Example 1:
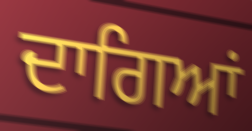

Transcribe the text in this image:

ਦਾਗਿਆਂ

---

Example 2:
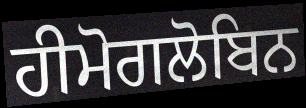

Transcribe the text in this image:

ਹੀਮੋਗਲੋਬਿਨ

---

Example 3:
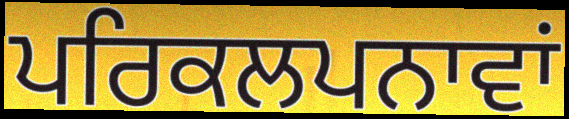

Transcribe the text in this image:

ਪਰਿਕਲਪਨਾਵਾਂ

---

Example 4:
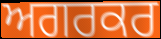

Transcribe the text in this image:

ਅਗਰਕਰ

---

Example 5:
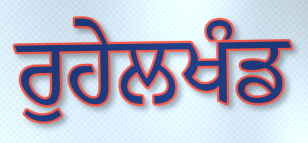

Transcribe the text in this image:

ਰੁਹੇਲਖੰਡ